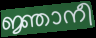
ജ്ഞാനീ